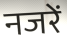
नजरें